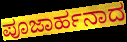
ಪೂಜಾರ್ಹನಾದ